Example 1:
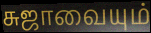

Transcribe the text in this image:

சுஜாவையும்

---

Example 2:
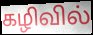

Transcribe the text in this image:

கழிவில்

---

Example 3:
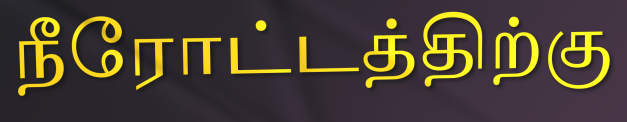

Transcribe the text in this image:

நீரோட்டத்திற்கு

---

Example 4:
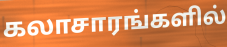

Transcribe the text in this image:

கலாசாரங்களில்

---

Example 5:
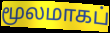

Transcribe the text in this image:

மூலமாகப்